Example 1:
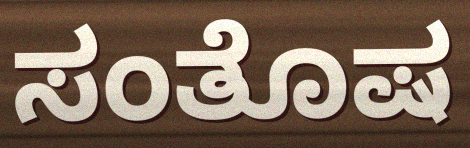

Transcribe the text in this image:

ಸಂತೊಷ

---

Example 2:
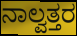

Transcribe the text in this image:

ನಾಲ್ವತ್ತರ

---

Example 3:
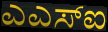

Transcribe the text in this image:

ಎಎಸ್ಐ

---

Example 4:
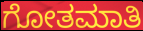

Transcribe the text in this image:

ಗೋತಮಾತಿ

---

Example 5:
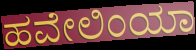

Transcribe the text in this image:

ಹವೇಲಿಂಯಾ